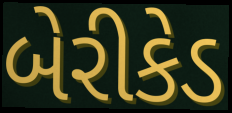
બેરીકેડ